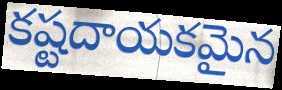
కష్టదాయకమైన